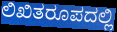
ಲಿಖಿತರೂಪದಲ್ಲಿ